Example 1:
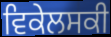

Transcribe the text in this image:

ਵਿਕੇਲਸਕੀ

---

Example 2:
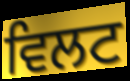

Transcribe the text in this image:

ਵਿਲਟ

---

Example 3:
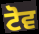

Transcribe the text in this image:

ਟੋਵ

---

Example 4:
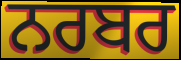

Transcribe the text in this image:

ਨਰਬਰ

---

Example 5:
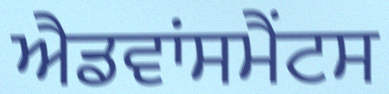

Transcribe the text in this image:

ਐਡਵਾਂਸਮੈਂਟਸ